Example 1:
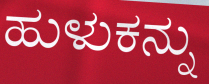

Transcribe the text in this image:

ಹುಳುಕನ್ನು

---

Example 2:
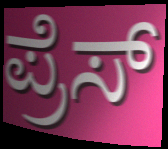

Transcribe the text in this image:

ಪ್ರೆಸ್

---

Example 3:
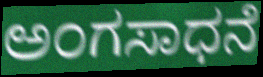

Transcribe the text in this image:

ಅಂಗಸಾಧನೆ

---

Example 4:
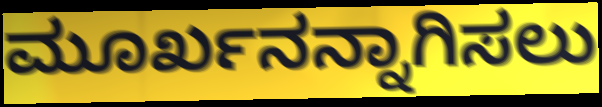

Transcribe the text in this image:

ಮೂರ್ಖನನ್ನಾಗಿಸಲು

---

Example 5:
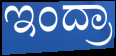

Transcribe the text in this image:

ಇಂದ್ರಾ